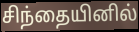
சிந்தையினில்